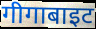
गीगाबाइट